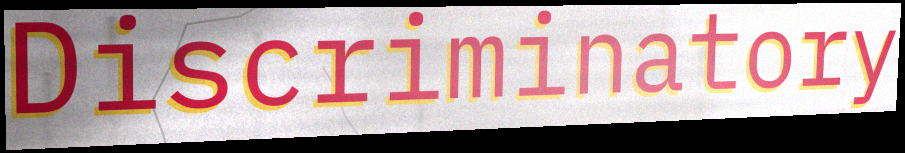
Discriminatory